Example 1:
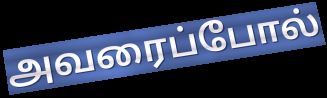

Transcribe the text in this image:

அவரைப்போல்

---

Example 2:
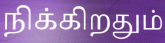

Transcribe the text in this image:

நிக்கிறதும்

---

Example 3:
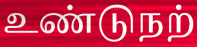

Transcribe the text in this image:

உண்டுநற்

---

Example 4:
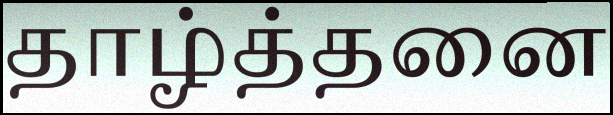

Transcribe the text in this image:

தாழ்த்தனை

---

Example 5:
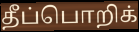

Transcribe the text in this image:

தீப்பொறிக்